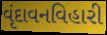
વૃંદાવનવિહારી